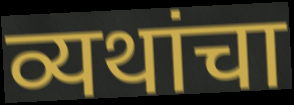
व्यथांचा